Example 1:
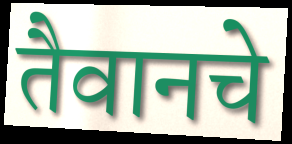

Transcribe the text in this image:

तैवानचे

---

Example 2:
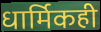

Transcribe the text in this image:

धार्मिकही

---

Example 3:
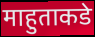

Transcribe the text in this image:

माहुताकडे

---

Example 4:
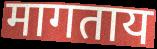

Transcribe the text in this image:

मागताय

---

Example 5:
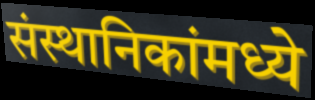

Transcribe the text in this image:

संस्थानिकांमध्ये